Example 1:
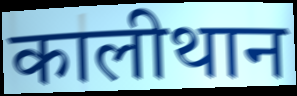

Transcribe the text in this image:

कालीथान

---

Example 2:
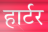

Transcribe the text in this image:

हार्टर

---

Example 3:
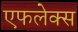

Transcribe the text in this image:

एफलेक्स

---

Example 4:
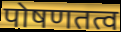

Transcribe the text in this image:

पोषणतत्व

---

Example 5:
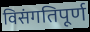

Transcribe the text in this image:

विसंगतिपूर्ण